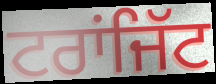
ਟਰਾਂਜਿੱਟ